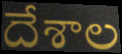
దేశాల